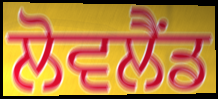
ਲੋਵਲੈਂਡ